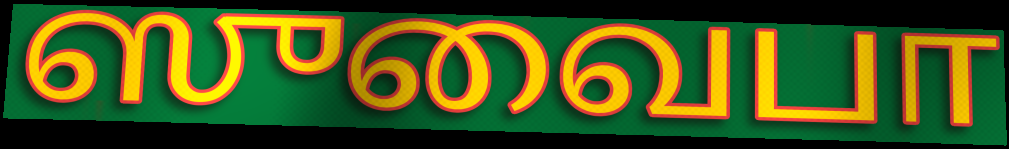
ஸுவைபா